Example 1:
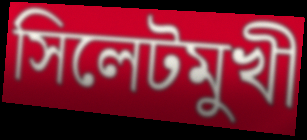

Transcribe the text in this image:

সিলেটমুখী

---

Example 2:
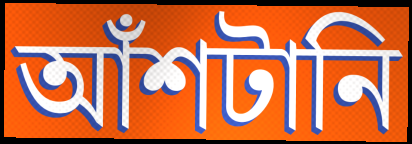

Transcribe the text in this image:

আঁশটানি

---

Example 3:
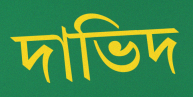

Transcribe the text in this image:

দাভিদ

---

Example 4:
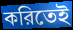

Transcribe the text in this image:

করিতেই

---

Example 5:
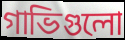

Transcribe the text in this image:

গাভিগুলো